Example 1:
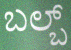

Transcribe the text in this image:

ಬಲ್ಬ್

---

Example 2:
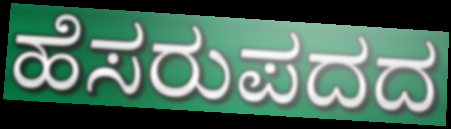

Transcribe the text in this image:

ಹೆಸರುಪದದ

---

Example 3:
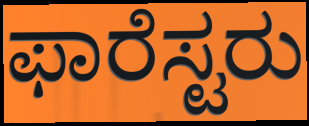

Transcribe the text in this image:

ಫಾರೆಸ್ಟರು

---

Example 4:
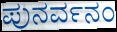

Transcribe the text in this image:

ಪುನರ್ವನಂ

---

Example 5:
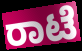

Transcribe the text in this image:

ರಾಟೆ